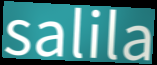
salila